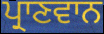
ਪ੍ਰਾਣਵਾਨ